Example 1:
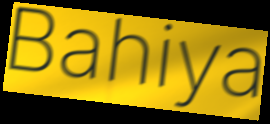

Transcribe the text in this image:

Bahiya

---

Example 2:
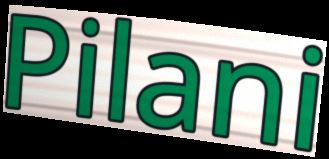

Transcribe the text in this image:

Pilani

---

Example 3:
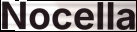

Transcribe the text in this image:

Nocella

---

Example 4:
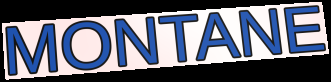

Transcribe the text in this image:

MONTANE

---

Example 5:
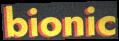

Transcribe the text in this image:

bionic